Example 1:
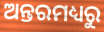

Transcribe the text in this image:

ଅନ୍ତରମଧ୍ୟରୁ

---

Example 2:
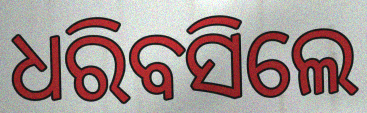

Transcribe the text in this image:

ଧରିବସିଲେ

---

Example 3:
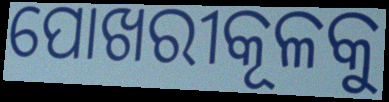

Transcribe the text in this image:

ପୋଖରୀକୂଳକୁ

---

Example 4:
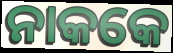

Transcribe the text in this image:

ନାକକେ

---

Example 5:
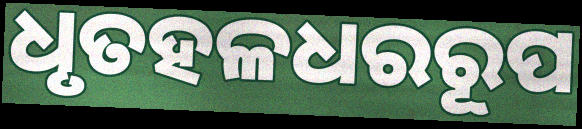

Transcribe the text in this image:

ଧୃତହଳଧରରୂପ